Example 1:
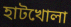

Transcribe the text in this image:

হাটখোলা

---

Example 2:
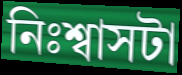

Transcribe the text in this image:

নিঃশ্বাসটা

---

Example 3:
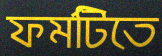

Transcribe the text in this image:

ফর্মটিতে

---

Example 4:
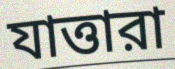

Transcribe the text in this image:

যাত্তারা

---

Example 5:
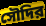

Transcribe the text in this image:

সৌদির